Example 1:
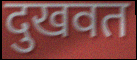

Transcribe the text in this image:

दुखवत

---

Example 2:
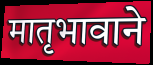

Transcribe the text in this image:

मातृभावाने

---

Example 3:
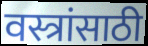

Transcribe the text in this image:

वस्त्रांसाठी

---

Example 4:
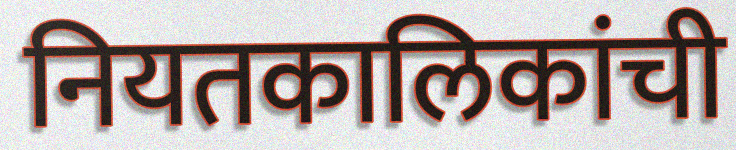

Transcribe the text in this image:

नियतकालिकांची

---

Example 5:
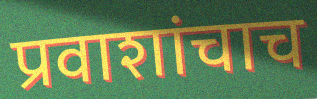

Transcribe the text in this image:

प्रवाशांचाच